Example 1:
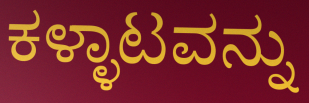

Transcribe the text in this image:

ಕಳ್ಳಾಟವನ್ನು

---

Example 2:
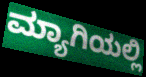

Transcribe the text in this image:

ಮ್ಯಾಗಿಯಲ್ಲಿ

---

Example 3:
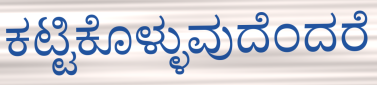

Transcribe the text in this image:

ಕಟ್ಟಿಕೊಳ್ಳುವುದೆಂದರೆ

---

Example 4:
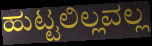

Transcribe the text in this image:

ಹುಟ್ಟಲಿಲ್ಲವಲ್ಲ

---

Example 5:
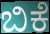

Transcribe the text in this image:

ಬಿಕೆ